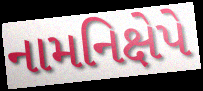
નામનિક્ષેપે